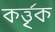
কর্ত্তৃক